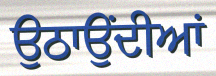
ਉਠਾਉਂਦੀਆਂ